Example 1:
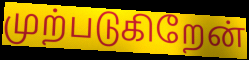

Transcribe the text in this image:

முற்படுகிறேன்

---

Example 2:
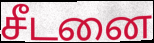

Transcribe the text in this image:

சீடனை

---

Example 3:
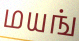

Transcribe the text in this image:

மயங்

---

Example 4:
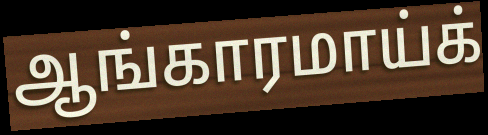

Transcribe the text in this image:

ஆங்காரமாய்க்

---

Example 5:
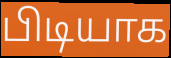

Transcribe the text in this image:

பிடியாக